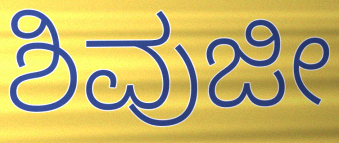
ಶಿವುಜೀ